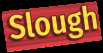
Slough